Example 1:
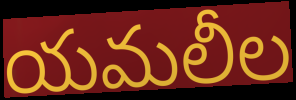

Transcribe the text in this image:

యమలీల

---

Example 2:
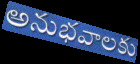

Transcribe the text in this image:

అనుభవాలకు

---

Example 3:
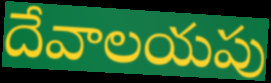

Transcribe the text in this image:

దేవాలయపు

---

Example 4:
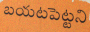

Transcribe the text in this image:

బయటపెట్టని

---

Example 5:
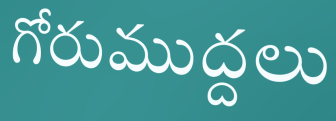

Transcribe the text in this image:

గోరుముద్దలు